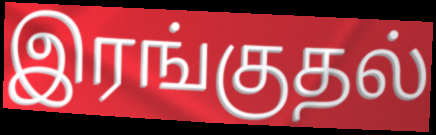
இரங்குதல்